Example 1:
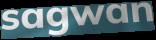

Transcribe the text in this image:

sagwan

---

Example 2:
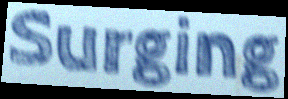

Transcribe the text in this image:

Surging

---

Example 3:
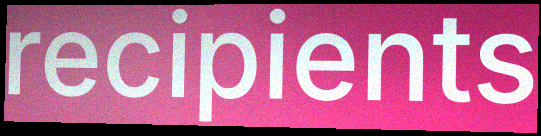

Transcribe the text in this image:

recipients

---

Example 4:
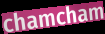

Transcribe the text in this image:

chamcham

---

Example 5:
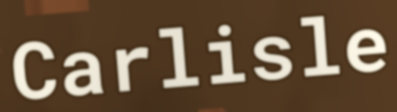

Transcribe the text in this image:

Carlisle